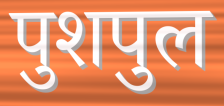
पुशपुल